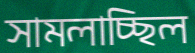
সামলাচ্ছিল